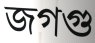
জগগু